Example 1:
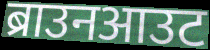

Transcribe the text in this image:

ब्राउनआउट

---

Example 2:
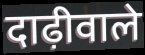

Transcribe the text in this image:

दाढ़ीवाले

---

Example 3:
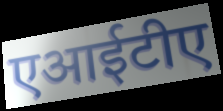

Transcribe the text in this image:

एआईटीए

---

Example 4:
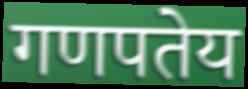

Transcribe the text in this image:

गणपतेय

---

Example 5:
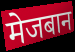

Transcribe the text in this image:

मेजबान